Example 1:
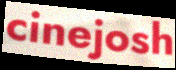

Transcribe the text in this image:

cinejosh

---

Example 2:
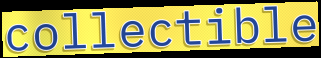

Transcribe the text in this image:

collectible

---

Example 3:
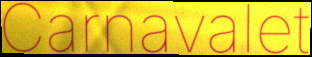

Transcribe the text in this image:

Carnavalet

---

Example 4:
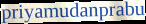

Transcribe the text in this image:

priyamudanprabu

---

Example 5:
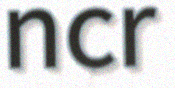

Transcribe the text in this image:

ncr